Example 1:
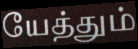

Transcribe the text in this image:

யேத்தும்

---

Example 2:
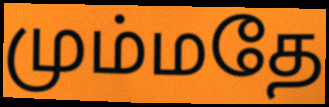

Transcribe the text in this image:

மும்மதே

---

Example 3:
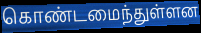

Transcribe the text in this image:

கொண்டமைந்துள்ளன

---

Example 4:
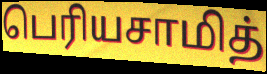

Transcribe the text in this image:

பெரியசாமித்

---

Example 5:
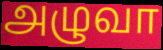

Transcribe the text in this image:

அழுவா